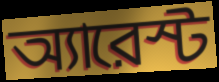
অ্যারেস্ট